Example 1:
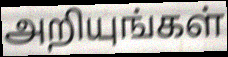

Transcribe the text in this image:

அறியுங்கள்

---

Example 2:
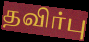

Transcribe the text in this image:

தவிர்பு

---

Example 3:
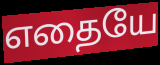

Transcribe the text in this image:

எதையே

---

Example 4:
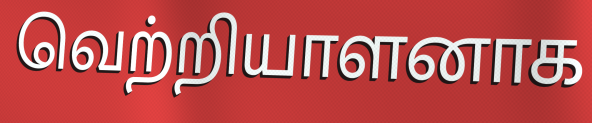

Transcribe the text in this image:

வெற்றியாளனாக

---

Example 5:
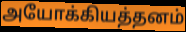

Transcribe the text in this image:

அயோக்கியத்தனம்